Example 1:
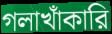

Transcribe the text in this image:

গলাখাঁকারি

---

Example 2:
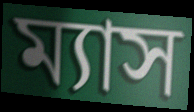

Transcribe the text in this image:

ম্যাস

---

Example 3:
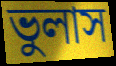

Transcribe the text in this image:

ভুলাস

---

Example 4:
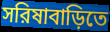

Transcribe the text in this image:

সরিষাবাড়িতে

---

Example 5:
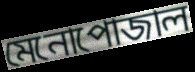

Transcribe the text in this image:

মেনোপোজাল